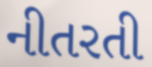
નીતરતી